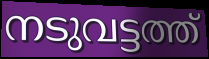
നടുവട്ടത്ത്